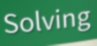
Solving